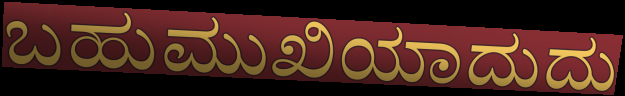
ಬಹುಮುಖಿಯಾದುದು